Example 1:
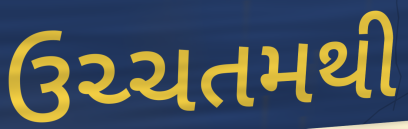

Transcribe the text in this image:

ઉચ્ચતમથી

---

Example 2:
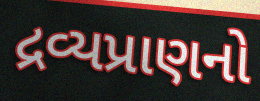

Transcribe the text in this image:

દ્રવ્યપ્રાણનો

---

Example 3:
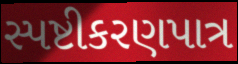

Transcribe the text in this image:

સ્પષ્ટીકરણપાત્ર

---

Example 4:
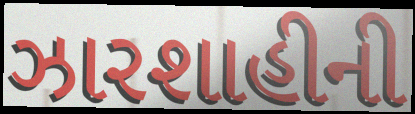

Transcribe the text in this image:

ઝારશાહીની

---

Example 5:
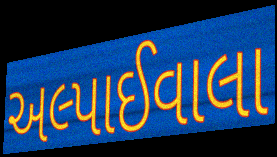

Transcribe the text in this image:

અલ્પાઈવાલા